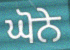
ਘੋਨੇ